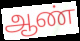
ஆண்